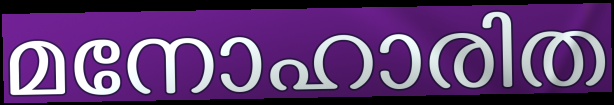
മനോഹാരിത